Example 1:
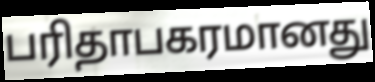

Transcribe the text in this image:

பரிதாபகரமானது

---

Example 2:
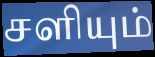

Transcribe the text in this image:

சளியும்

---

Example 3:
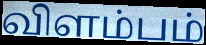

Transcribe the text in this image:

விளம்பம்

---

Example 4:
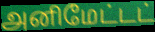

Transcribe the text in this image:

அனிமேட்டட்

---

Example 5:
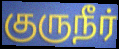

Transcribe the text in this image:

குருநீர்